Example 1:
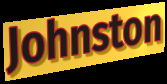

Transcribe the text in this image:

Johnston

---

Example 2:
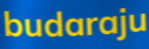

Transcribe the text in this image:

budaraju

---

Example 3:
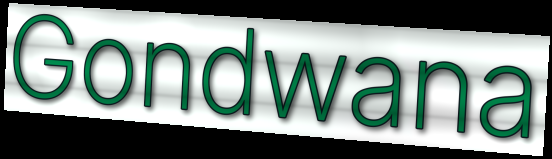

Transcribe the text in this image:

Gondwana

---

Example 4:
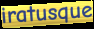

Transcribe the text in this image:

iratusque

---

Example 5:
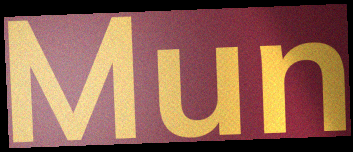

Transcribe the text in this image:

Mun